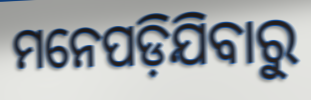
ମନେପଡ଼ିଯିବାରୁ